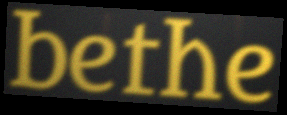
bethe